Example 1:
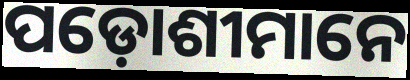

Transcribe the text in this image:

ପଡ଼ୋଶୀମାନେ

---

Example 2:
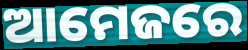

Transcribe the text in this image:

ଆମେଜରେ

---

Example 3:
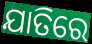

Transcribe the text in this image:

ଯାତିରେ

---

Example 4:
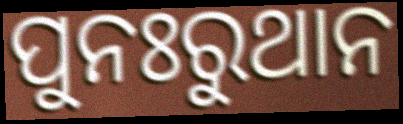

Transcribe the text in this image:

ପୁନଃରୁଥାନ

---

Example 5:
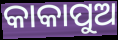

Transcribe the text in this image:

କାକାପୁଅ